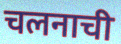
चलनाची